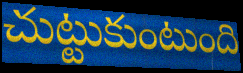
చుట్టుకుంటుంది